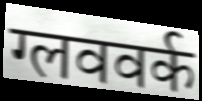
ग्लववर्क